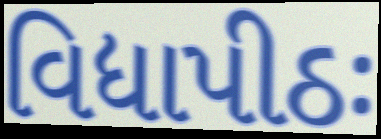
વિદ્યાપીઠઃ